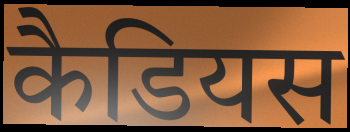
कैडियस